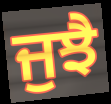
ਜੁਝੈ